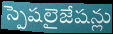
స్పెషలైజేషన్లు